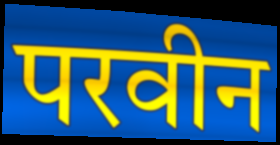
परवीन